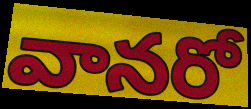
వానరో